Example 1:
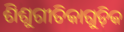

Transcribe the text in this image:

ଶିଶୁଗୀତିକାଗୁଡ଼ିକ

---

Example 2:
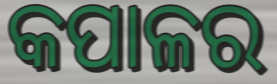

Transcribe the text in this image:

କପାଳର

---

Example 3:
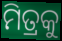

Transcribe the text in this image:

ମିତ୍ରକୁ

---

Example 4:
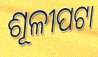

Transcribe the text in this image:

ଶୂଳୀପଟା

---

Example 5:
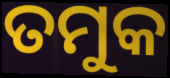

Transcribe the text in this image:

ତମୁକ